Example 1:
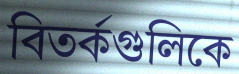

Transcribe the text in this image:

বিতর্কগুলিকে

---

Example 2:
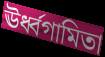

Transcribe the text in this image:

ঊর্ধ্বগামিতা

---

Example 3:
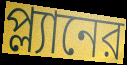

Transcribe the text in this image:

প্ল্যানের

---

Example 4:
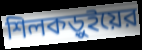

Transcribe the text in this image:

শিলকড়ুইয়ের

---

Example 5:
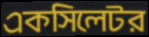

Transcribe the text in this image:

একসিলেটর